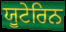
ਯੂਟੇਰਿਨ